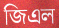
জিএল